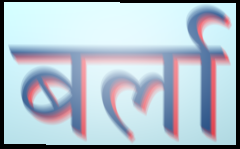
बर्ला